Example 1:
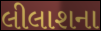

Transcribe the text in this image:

લીલાશના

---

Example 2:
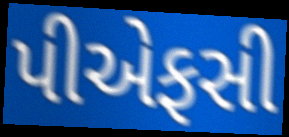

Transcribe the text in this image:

પીએફસી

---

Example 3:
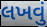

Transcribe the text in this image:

લખવું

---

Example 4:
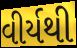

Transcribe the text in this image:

વીર્યથી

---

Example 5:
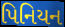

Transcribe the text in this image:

પિનિયન